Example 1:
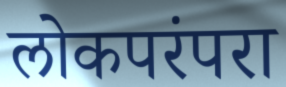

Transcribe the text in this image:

लोकपरंपरा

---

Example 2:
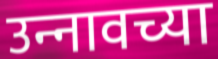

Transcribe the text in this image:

उन्नावच्या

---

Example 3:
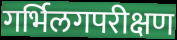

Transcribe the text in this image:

गर्भिलगपरीक्षण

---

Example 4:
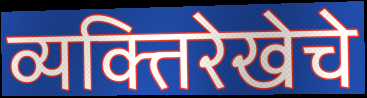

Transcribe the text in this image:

व्यक्तिरेखेचे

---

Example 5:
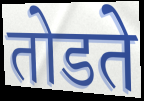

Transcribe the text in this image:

तोडते